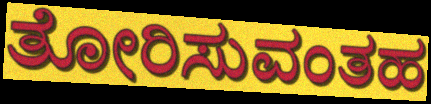
ತೋರಿಸುವಂತಹ